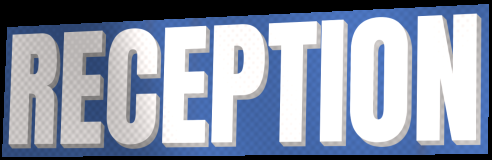
RECEPTION